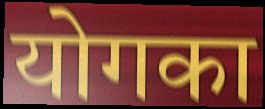
योगका